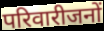
परिवारीजनों